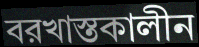
বরখাস্তকালীন